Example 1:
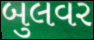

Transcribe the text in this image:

બુલવર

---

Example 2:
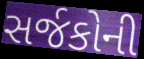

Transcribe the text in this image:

સર્જકોની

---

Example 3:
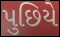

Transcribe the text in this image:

પુછિયે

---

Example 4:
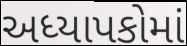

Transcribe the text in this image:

અધ્યાપકોમાં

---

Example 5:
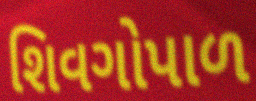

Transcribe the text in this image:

શિવગોપાળ